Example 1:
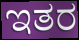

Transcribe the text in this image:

ಇತರ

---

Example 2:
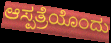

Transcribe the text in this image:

ಆಸ್ಪತ್ರೆಯೊಂದು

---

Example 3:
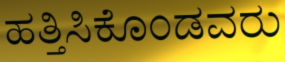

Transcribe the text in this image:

ಹತ್ತಿಸಿಕೊಂಡವರು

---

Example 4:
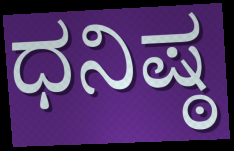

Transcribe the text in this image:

ಧನಿಷ್ಠ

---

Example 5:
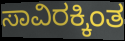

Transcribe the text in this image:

ಸಾವಿರಕ್ಕಿಂತ